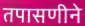
तपासणीने